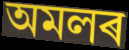
অমলৰ